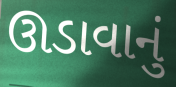
ઊડાવાનું